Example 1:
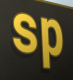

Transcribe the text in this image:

sp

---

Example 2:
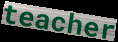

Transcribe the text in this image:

teacher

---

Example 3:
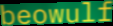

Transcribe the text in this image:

beowulf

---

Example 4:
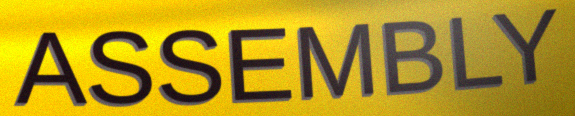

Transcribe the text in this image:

ASSEMBLY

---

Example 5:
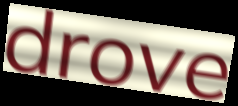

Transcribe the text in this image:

drove